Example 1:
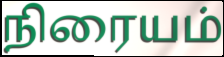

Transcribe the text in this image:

நிரையம்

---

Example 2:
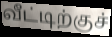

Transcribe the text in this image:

வீட்டிற்குச்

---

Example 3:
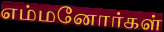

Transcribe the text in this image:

எம்மனோர்கள்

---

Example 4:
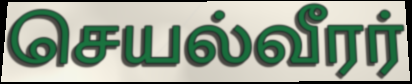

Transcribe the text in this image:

செயல்வீரர்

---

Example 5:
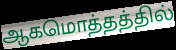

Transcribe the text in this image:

ஆகமொத்தத்தில்